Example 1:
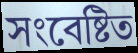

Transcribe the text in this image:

সংবেষ্টিত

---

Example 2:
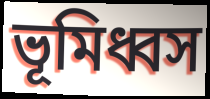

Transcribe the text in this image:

ভূমিধ্বস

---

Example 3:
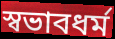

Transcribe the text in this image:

স্বভাবধর্ম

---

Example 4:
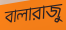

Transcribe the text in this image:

বালারাজু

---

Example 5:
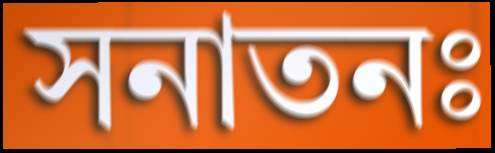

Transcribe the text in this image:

সনাতনঃ